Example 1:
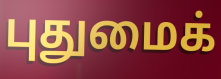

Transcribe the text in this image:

புதுமைக்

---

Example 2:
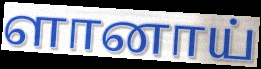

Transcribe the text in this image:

ளானாய்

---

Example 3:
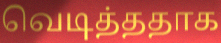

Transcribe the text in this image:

வெடித்ததாக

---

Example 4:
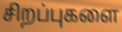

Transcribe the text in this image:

சிறப்புகளை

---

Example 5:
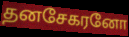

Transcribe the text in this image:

தனசேகரனோ